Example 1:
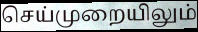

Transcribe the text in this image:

செய்முறையிலும்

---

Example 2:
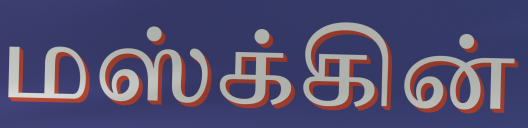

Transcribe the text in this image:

மஸ்க்கின்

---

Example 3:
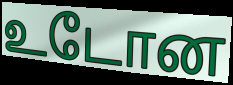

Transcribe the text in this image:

உடோன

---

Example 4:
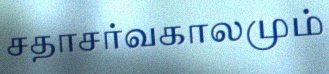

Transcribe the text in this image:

சதாசர்வகாலமும்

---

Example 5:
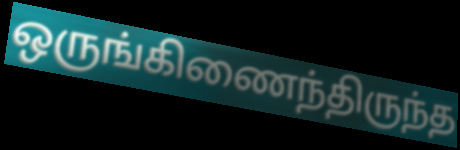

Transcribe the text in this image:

ஒருங்கிணைந்திருந்த